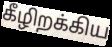
கீழிறக்கிய